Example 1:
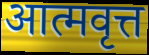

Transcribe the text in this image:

आत्मवृत्त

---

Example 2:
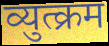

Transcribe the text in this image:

व्युत्क्रम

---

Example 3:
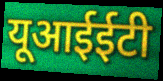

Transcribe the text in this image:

यूआईईटी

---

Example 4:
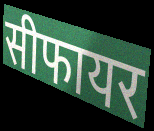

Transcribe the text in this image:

सीफायर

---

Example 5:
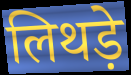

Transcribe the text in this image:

लिथड़े